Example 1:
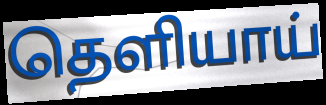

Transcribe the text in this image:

தெளியாய்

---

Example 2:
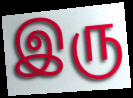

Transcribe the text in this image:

இரு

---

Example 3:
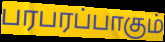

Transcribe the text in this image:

பரபரப்பாகும்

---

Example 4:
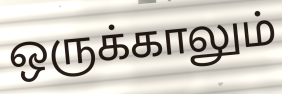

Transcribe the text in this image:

ஒருக்காலும்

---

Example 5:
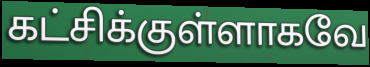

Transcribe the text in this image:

கட்சிக்குள்ளாகவே